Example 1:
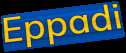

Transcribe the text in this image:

Eppadi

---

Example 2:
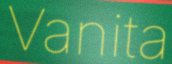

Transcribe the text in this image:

Vanita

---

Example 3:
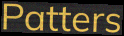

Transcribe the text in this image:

Patters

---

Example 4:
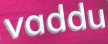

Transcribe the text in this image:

vaddu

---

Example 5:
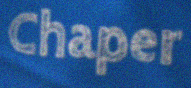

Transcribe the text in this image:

Chaper